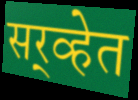
सर्व्हेत